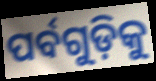
ପର୍ବଗୁଡ଼ିକୁ